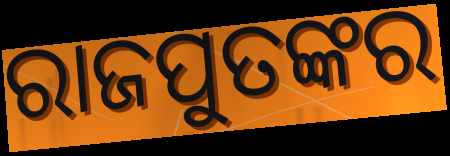
ରାଜପୁତଙ୍କର